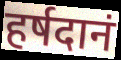
हर्षदानं